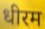
धीरम